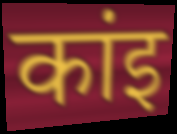
कांइ